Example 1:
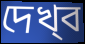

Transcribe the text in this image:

দেখ্‌ব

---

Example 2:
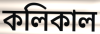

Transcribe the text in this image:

কলিকাল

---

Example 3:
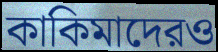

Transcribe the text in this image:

কাকিমাদেরও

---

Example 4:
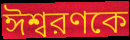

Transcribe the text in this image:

ঈশ্বরণকে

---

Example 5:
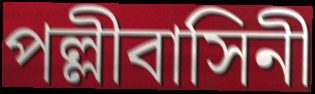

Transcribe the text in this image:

পল্লীবাসিনী